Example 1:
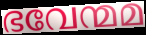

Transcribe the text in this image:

ഭവേന്മമ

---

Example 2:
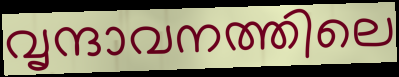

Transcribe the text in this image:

വൃന്ദാവനത്തിലെ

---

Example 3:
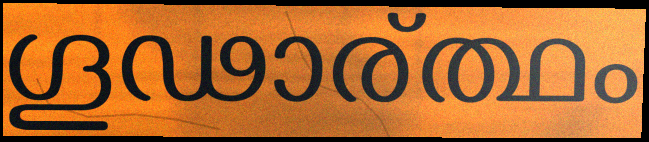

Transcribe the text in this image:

ഗൂഢാര്ത്ഥം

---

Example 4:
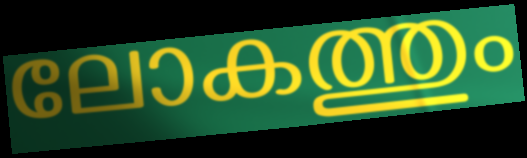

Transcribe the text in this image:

ലോകത്തും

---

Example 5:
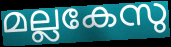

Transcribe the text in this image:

മല്ലകേസു